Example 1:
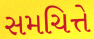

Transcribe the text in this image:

સમચિત્તે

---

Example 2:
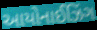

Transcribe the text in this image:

આયોનાઈઝિંગ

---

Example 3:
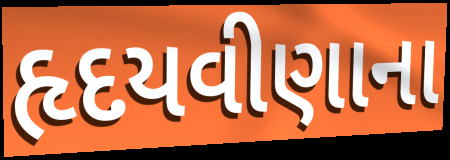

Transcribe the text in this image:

હૃદયવીણાના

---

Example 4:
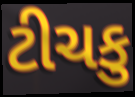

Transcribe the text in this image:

ટીચકુ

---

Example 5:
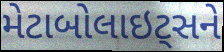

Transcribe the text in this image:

મેટાબોલાઇટ્સને